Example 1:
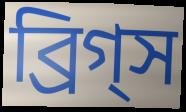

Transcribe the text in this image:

ব্রিগ্‌স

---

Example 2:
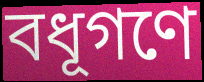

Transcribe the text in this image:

বধূগণে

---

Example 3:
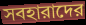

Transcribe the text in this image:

সবহারাদের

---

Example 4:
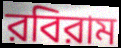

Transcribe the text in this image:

রবিরাম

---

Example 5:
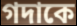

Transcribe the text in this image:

গদাকে